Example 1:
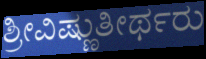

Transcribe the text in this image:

ಶ್ರೀವಿಷ್ಣುತೀರ್ಥರು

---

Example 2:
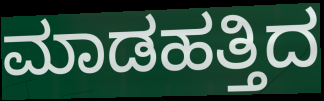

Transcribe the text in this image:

ಮಾಡಹತ್ತಿದ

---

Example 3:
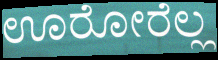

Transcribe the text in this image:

ಊರೋರೆಲ್ಲ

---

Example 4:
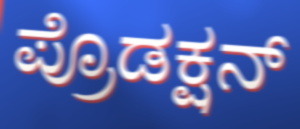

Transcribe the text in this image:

ಪ್ರೊಡಕ್ಷನ್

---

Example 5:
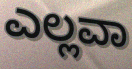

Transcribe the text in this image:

ಎಲ್ಲವಾ